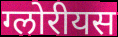
ग्लोरीयस